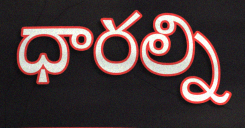
ధారల్ని